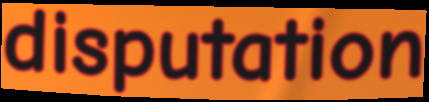
disputation